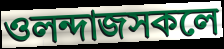
ওলন্দাজসকলে